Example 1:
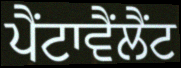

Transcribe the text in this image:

ਪੈਂਟਾਵੈਂਲੈਂਟ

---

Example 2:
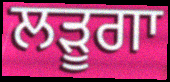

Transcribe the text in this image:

ਲੜੂਗਾ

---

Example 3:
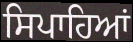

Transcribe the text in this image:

ਸਿਪਾਹਿਆਂ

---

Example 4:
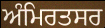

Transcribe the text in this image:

ਅੰਮਿਰਤਸਰ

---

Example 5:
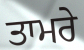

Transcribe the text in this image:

ਤਾਮਰੇ